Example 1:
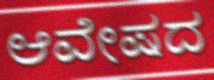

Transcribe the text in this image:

ಆವೇಷದ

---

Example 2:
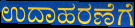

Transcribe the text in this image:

ಉದಾಹರಣೆಗೆ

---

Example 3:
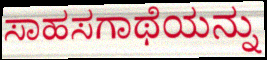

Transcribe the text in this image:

ಸಾಹಸಗಾಥೆಯನ್ನು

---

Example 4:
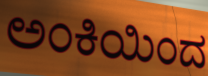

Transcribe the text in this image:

ಅಂಕಿಯಿಂದ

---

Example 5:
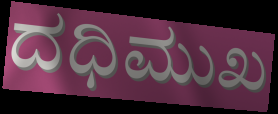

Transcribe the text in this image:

ದಧಿಮುಖ